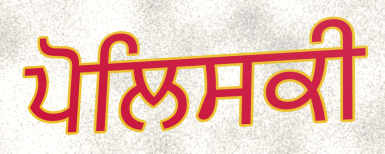
ਪੋਲਿਸਕੀ